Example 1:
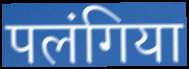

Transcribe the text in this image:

पलंगिया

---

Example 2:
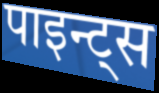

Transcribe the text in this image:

पाइन्ट्स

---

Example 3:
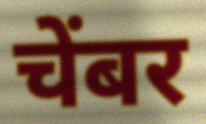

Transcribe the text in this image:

चेंबर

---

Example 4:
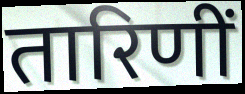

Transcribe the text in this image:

तारिणीं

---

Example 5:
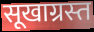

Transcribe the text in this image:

सूखाग्रस्‍त